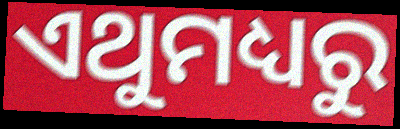
ଏଥୁମଧ୍ୟରୁ